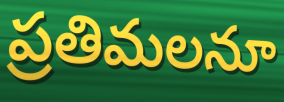
ప్రతిమలనూ